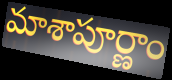
మాశాపూర్ణాం